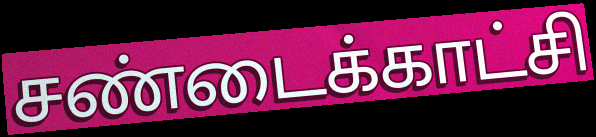
சண்டைக்காட்சி